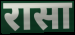
रासा